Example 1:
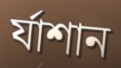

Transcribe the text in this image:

র্যাশান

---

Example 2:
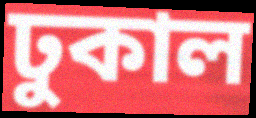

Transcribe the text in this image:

ঢুকাল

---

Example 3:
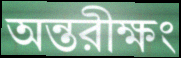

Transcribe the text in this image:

অন্তরীক্ষং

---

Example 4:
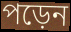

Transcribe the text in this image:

পড়েন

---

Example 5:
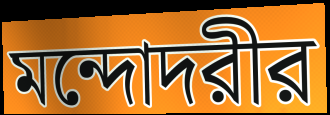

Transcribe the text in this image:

মন্দোদরীর